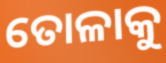
ତୋଳାକୁ